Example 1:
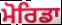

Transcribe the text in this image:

ਮੋਰਿਡਾ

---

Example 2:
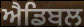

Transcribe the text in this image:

ਐਡਿਬਲ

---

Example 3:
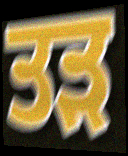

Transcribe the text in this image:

ਤੜ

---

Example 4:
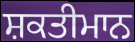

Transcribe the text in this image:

ਸ਼ਕਤੀਮਾਨ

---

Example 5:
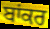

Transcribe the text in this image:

ਬਾਂਕਰ